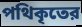
পথিকৃতের